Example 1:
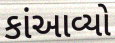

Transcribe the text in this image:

કાંઆવ્યો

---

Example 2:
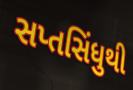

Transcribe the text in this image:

સપ્તસિંધુથી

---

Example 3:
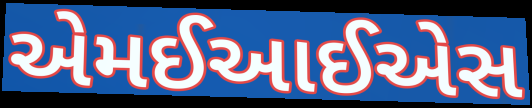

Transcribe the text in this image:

એમઈઆઈએસ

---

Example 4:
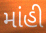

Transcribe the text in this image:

માંહી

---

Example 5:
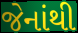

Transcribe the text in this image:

જેનાંથી